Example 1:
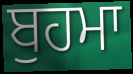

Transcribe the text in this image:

ਬੁਹਮਾ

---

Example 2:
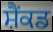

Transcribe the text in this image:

ਸ਼ੈਂਕਡ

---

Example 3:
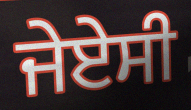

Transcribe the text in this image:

ਜੇਏਸੀ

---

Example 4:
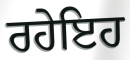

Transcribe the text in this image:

ਰਹੇਇਹ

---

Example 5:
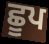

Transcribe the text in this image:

ਛੂਪ